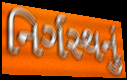
નિર્ગસ્થનું